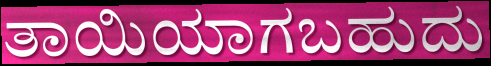
ತಾಯಿಯಾಗಬಹುದು